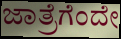
ಜಾತ್ರೆಗೆಂದೇ